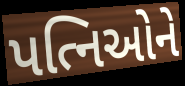
પત્નિઓને